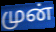
முன்